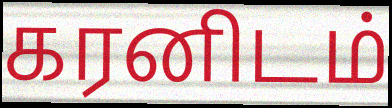
கரனிடம்